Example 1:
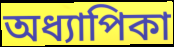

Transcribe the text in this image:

অধ্যাপিকা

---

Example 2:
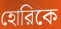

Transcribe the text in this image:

হোরিকে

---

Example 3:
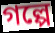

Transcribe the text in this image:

গল্পে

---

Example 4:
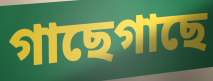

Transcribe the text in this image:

গাছেগাছে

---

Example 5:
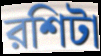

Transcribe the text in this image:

রশিটা